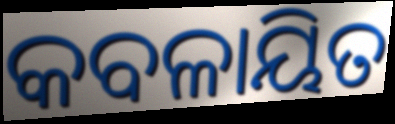
କବଳାୟିତ